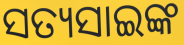
ସତ୍ୟସାଇଙ୍କ